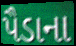
પૈડાના